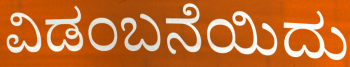
ವಿಡಂಬನೆಯಿದು